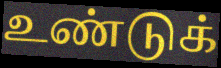
உண்டுக்